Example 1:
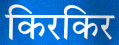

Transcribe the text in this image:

किरकिर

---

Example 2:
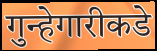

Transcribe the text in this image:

गुन्हेगारीकडे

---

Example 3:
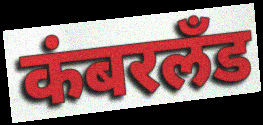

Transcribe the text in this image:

कंबरलँड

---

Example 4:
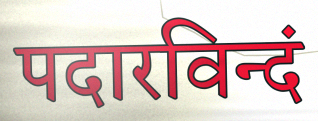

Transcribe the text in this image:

पदारविन्दं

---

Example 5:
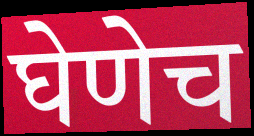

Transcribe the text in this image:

घेणेच